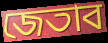
জেতাব